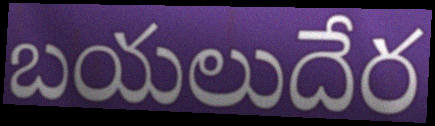
బయలుదేర